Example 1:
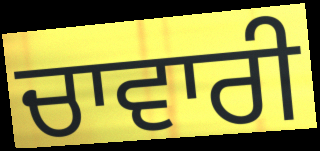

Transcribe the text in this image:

ਚਾਵਾਰੀ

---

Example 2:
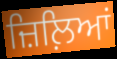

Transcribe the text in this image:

ਜ਼ਿਲ਼ਿਆਂ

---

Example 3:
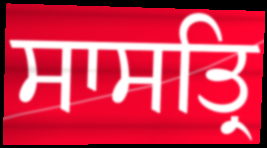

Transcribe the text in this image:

ਸਾਸਤ੍ਰਿ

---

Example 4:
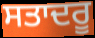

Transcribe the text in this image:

ਸਤਾਦਰੂ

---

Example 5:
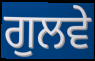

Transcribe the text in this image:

ਗੁਲਵੇ